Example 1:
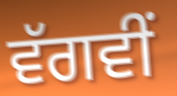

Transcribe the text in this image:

ਵੱਗਵੀਂ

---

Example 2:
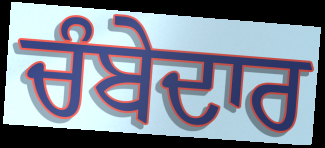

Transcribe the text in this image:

ਚੰਬੇਦਾਰ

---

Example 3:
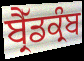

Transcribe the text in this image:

ਬ੍ਰੈੱਡਕ੍ਰੰਬ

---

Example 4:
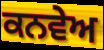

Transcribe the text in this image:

ਕਨਵੇਅ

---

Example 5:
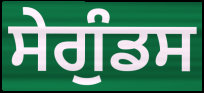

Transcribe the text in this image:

ਸੇਗੁੰਡਸ